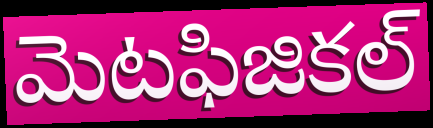
మెటఫిజికల్